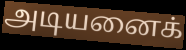
அடியனைக்